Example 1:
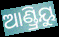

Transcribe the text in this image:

ଆଣ୍ଡ୍ରିୟୁ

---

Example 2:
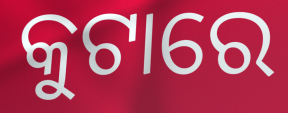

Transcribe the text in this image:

କୁଟାରେ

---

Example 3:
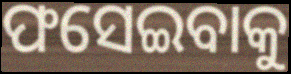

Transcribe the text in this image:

ଫସେଇବାକୁ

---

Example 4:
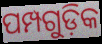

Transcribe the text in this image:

ପମ୍ପଗୁଡ଼ିକ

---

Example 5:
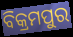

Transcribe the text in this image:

ବିକ୍ରମପୁର